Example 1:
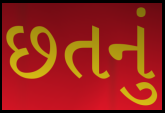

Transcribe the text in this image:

છતનું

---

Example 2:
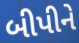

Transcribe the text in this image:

બીપીને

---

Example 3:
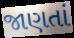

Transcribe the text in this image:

જાણતાં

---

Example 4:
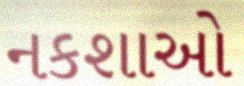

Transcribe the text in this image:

નકશાઓ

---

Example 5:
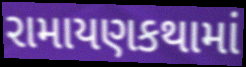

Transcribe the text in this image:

રામાયણકથામાં